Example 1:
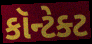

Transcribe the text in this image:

કૉન્ટેક્ટ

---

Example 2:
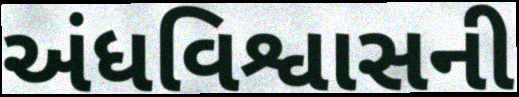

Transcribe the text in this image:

અંધવિશ્વાસની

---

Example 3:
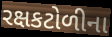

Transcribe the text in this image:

રક્ષકટોળીના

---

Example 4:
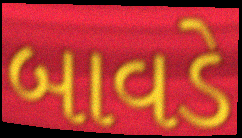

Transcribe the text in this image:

બાવડે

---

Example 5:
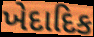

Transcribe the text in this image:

ખેદાદિક